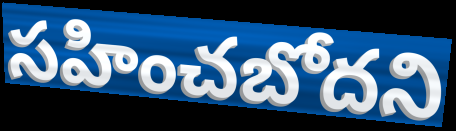
సహించబోదని